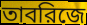
তাবরিজে